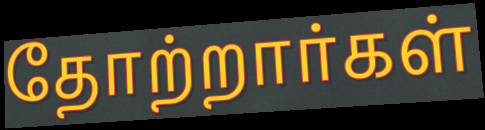
தோற்றார்கள்